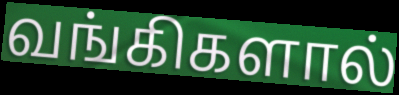
வங்கிகளால்